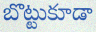
బొట్టుకూడా